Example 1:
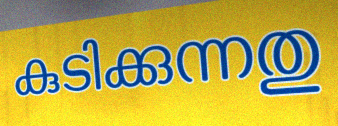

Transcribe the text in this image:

കുടിക്കുന്നതു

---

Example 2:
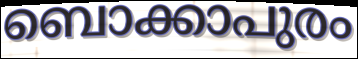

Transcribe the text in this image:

ബൊക്കാപുരം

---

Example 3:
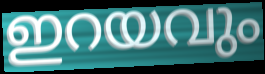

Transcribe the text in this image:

ഇറയവും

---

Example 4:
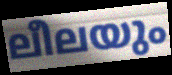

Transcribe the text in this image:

ലീലയും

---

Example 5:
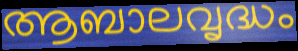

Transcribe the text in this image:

ആബാലവൃദ്ധം